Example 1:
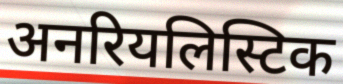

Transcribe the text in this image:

अनरियलिस्टिक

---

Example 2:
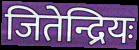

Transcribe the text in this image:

जितेन्द्रियः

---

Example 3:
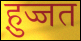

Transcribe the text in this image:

ह़ुज्जत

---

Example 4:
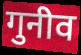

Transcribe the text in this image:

गुनीव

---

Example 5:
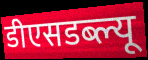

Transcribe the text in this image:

डीएसडब्ल्यू